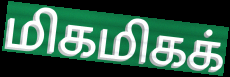
மிகமிகக்